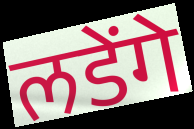
लडेंगे